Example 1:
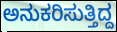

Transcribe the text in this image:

ಅನುಕರಿಸುತ್ತಿದ್ದ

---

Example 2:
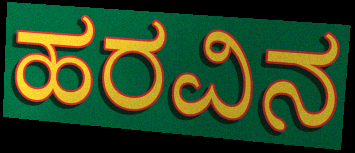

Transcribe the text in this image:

ಹರವಿನ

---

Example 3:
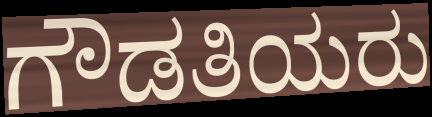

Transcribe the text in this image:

ಗೌಡತಿಯರು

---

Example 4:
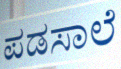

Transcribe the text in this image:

ಪಡಸಾಲೆ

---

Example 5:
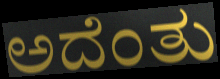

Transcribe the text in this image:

ಅದೆಂತು